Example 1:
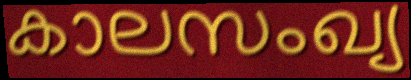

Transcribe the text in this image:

കാലസംഖ്യ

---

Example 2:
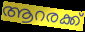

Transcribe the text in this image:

ആറരക്ക്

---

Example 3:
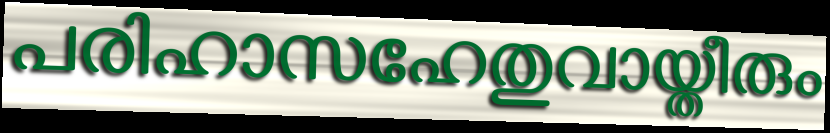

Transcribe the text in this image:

പരിഹാസഹേതുവായ്തീരും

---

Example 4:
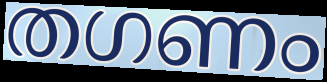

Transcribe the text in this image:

തഗണം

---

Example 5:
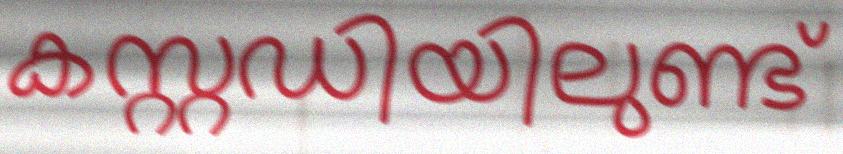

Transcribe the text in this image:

കസ്റ്റഡിയിലുണ്ട്